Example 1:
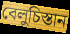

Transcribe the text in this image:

বেলুচিস্তান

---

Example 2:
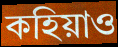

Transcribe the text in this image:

কহিয়াও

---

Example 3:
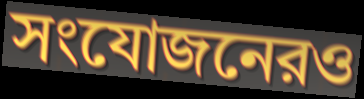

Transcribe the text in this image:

সংযোজনেরও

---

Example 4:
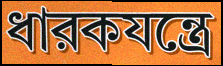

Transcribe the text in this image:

ধারকযন্ত্রে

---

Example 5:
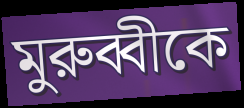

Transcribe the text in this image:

মুরুব্বীকে